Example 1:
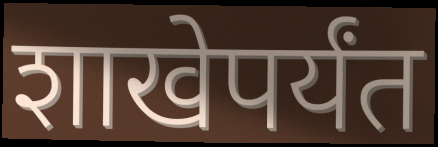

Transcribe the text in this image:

शाखेपर्यंत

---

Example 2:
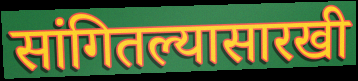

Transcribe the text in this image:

सांगितल्यासारखी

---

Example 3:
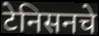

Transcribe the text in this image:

टेनिसनचे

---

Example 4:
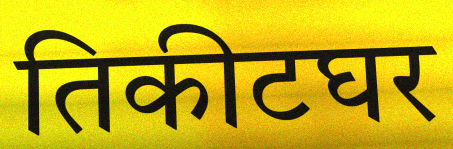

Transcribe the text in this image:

तिकीटघर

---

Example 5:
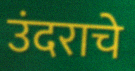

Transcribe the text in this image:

उंदराचे